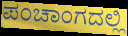
ಪಂಚಾಂಗದಲ್ಲಿ